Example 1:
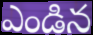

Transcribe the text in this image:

ఎండిన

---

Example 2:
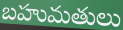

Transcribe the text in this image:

బహుమతులు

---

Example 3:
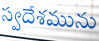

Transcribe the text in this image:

స్వదేశమును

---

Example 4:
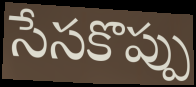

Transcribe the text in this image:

సేసకొప్పు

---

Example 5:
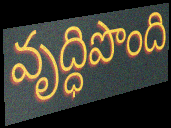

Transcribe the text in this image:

వృద్ధిపొంది